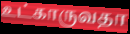
உட்காருவதா